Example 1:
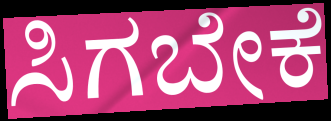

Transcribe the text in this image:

ಸಿಗಬೇಕೆ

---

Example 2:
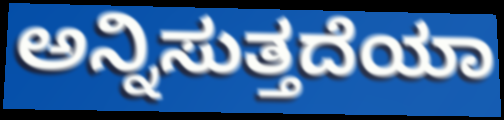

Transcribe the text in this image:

ಅನ್ನಿಸುತ್ತದೆಯಾ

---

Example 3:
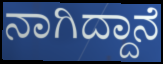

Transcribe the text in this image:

ನಾಗಿದ್ದಾನೆ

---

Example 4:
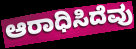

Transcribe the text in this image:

ಆರಾಧಿಸಿದೆವು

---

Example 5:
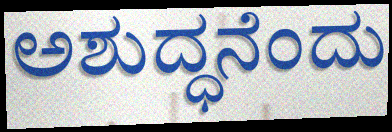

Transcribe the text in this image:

ಅಶುದ್ಧನೆಂದು